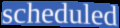
scheduled